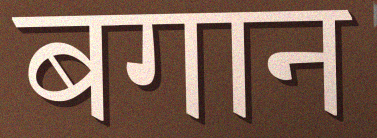
बगान